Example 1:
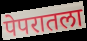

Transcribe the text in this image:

पेपरातला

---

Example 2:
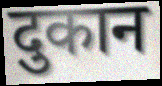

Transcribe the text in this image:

दुकान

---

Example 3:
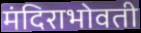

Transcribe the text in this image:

मंदिराभोवती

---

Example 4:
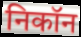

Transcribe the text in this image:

निकॉन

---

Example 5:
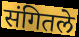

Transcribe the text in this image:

संगितले